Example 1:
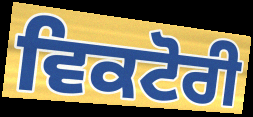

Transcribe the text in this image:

ਵਿਕਟੋਰੀ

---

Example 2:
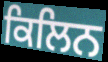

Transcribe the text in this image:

ਕਿਲਿਨ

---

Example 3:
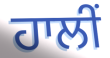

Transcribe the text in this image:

ਹਾਲੀਂ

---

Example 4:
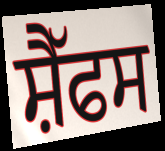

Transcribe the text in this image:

ਸ਼ੈੱਫਸ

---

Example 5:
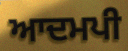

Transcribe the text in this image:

ਆਦਮਪੀ